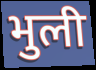
भुली